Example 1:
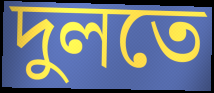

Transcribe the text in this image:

দুলতে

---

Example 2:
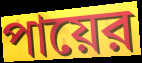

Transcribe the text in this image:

পায়ের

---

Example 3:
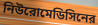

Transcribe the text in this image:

নিউরোমেডিসিনের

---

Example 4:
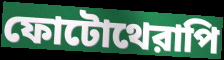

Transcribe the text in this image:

ফোটোথেরাপি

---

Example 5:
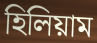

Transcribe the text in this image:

হিলিয়াম